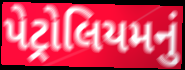
પેટ્રોલિયમનું